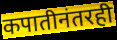
कपातीनंतरही